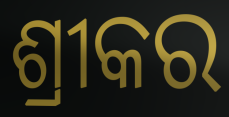
ଶ୍ରୀକର